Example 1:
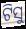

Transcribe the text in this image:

ଟିସୁ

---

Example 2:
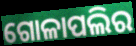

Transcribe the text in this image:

ଗୋଳାପଲିର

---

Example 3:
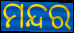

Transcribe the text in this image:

ମନ୍ଦର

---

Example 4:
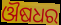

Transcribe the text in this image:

ଔଷଧର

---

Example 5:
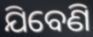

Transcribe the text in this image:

ଯିବେଣି